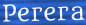
Perera